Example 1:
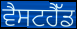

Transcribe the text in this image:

ਵੈਸਟਹੈੱਡ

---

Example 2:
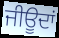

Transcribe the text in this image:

ਜੀਊਦਾਂ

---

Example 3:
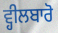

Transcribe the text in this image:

ਵ੍ਹੀਲਬਾਰੋ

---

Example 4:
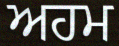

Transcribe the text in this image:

ਅਹਮ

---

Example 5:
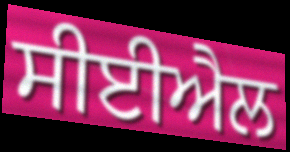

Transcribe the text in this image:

ਸੀਈਐਲ